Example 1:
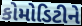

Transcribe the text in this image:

કોમોડિટીને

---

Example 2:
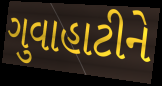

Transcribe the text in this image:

ગુવાહાટીને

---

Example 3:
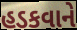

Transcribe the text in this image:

હડકવાને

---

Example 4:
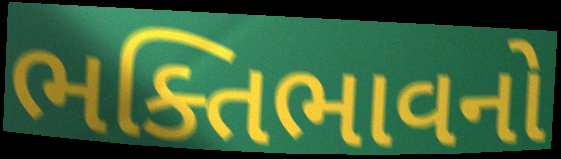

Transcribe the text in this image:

ભક્તિભાવનો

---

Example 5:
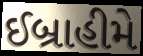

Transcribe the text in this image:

ઈબ્રાહીમે